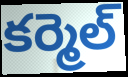
కర్మెల్